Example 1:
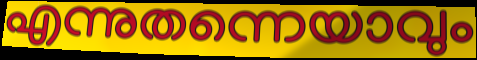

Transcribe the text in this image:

എന്നുതന്നെയാവും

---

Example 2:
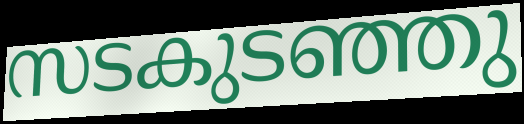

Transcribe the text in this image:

സടകുടഞ്ഞു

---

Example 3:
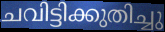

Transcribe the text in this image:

ചവിട്ടിക്കുതിച്ചു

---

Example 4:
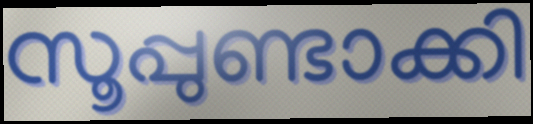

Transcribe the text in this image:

സൂപ്പുണ്ടാക്കി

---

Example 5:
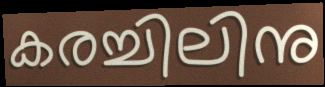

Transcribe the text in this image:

കരച്ചിലിനു